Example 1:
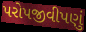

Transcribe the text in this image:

પરોપજીવીપણું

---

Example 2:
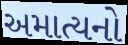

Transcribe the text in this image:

અમાત્યનો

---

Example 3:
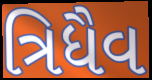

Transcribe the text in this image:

ત્રિધૈવ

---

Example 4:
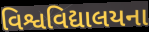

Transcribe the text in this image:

વિશ્વવિદ્યાલયના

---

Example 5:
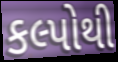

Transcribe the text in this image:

કલ્પોથી